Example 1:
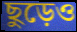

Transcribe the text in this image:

ছুড়েও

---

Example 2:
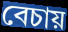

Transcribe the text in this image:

বেচায়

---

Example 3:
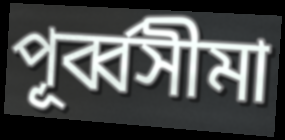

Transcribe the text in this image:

পূর্ব্বসীমা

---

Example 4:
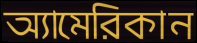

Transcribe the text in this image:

অ্যামেরিকান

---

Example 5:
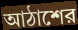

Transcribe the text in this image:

আঠাশের